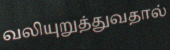
வலியுறுத்துவதால்